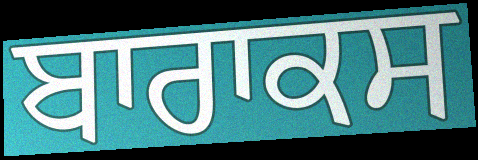
ਬਾਰਾਕਸ